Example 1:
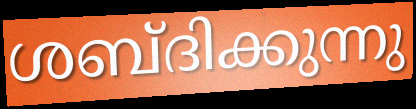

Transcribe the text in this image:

ശബ്ദിക്കുന്നു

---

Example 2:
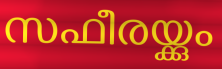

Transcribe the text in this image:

സഫീരയ്ക്കും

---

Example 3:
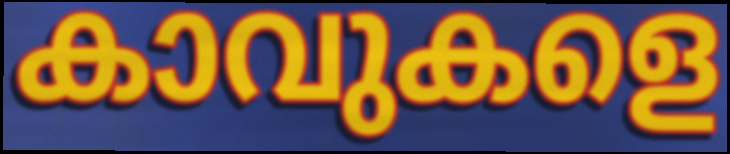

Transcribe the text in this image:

കാവുകളെ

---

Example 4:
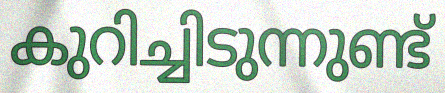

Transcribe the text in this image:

കുറിച്ചിടുന്നുണ്ട്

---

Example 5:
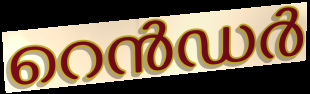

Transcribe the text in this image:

റെൻഡർ